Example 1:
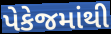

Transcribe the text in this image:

પેકેજમાંથી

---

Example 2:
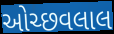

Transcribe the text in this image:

ઓચ્છવલાલ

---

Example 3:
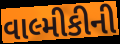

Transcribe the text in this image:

વાલ્મીકીની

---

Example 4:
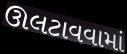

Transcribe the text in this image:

ઊલટાવવામાં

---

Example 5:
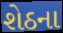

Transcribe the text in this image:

શેઠના